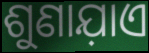
ଶୁଣାଯ଼ାଏ